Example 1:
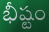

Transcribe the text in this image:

భీష్టం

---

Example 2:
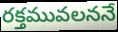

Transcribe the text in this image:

రక్తమువలననే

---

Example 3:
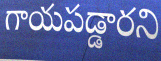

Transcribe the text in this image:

గాయపడ్డారని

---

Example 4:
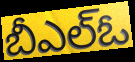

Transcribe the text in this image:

బీఎల్ఓ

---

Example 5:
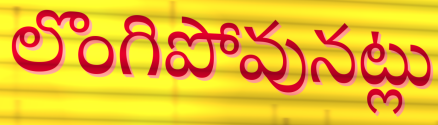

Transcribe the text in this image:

లొంగిపోవునట్లు